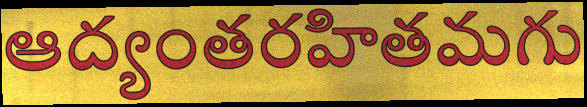
ఆద్యంతరహితమగు